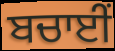
ਬਚਾਈਂ